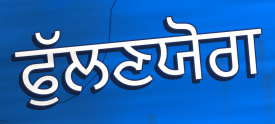
ਫੁੱਲਣਯੋਗ